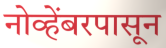
नोव्हेंबरपासून